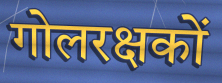
गोलरक्षकों